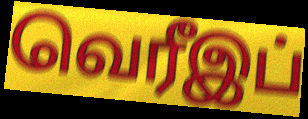
வெரீஇப்